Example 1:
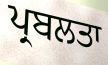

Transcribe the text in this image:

ਪ੍ਰਬਲਤਾ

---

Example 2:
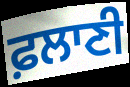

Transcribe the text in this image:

ਫ਼ਲਾਣੀ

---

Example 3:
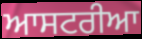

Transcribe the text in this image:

ਆਸਟਰੀਆ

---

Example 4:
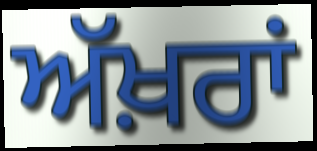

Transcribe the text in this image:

ਅੱਖ਼ਰਾਂ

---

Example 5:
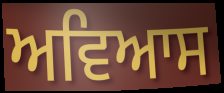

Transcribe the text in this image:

ਅਵਿਆਸ